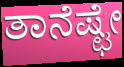
ತಾನೆಷ್ಟೇ